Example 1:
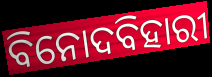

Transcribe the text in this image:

ବିନୋଦବିହାରୀ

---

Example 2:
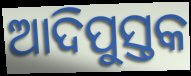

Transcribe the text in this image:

ଆଦିପୁସ୍ତକ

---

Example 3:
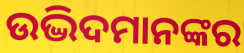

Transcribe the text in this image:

ଉଦ୍ଭିଦମାନଙ୍କର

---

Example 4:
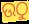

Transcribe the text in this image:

ଉଠୁ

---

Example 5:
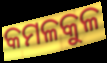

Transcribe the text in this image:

କମଳକୁଳ